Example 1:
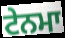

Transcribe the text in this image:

ਟੇਨਮਾ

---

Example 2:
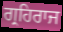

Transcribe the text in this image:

ਗ੍ਰਹਿਰਾਜ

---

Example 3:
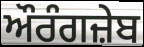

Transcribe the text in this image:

ਔਰੰਗਜ਼ੇਬ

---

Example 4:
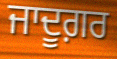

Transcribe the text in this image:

ਜਾਦੂਗ਼ਰ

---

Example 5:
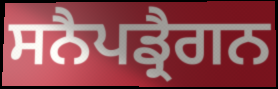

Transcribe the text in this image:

ਸਨੈਪਡ੍ਰੈਗਨ